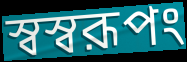
স্বস্বরূপং